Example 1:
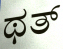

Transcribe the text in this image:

ಥತ್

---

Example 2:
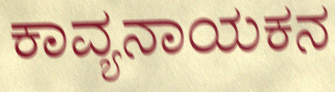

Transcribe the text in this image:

ಕಾವ್ಯನಾಯಕನ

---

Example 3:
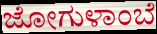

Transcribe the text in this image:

ಜೋಗುಳಾಂಬೆ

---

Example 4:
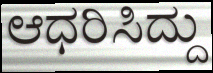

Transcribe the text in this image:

ಆಧರಿಸಿದ್ದು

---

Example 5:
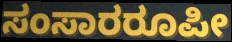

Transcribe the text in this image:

ಸಂಸಾರರೂಪೀ